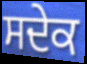
ਸਦੇਕ